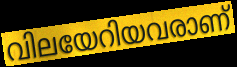
വിലയേറിയവരാണ്